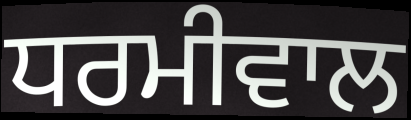
ਧਰਮੀਵਾਲ